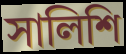
সালিশি